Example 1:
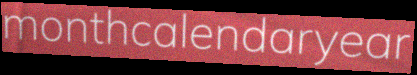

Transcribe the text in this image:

monthcalendaryear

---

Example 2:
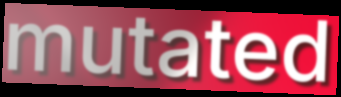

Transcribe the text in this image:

mutated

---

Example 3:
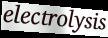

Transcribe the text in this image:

electrolysis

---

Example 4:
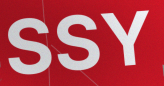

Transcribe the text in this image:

SSY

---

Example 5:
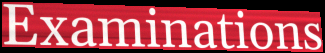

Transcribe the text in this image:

Examinations